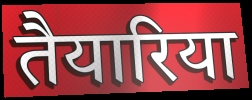
तैयारिया